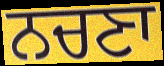
ਨਚਣਾ